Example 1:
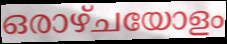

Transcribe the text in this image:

ഒരാഴ്ചയോളം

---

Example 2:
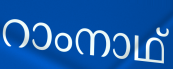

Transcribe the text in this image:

റാംനാഥ്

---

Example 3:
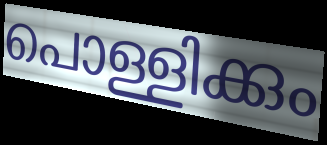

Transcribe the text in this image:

പൊള്ളിക്കും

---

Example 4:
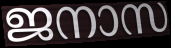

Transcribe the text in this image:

ജനാസ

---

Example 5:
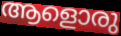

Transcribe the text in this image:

ആളൊരു